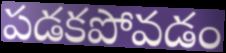
పడకపోవడం